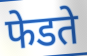
फेडते